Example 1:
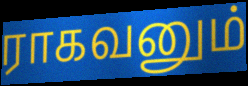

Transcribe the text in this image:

ராகவனும்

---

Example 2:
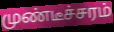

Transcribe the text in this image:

முண்டீச்சரம்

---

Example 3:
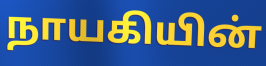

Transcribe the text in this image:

நாயகியின்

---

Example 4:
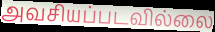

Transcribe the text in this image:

அவசியப்படவில்லை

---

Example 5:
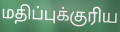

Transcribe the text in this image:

மதிப்புக்குரிய